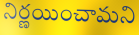
నిర్ణయించామని